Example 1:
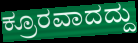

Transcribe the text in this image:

ಕ್ರೂರವಾದದ್ದು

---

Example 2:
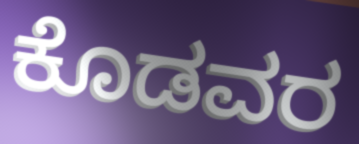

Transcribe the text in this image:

ಕೊಡವರ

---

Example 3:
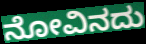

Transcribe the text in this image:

ನೋವಿನದು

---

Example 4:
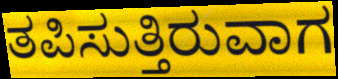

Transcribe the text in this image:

ತಪಿಸುತ್ತಿರುವಾಗ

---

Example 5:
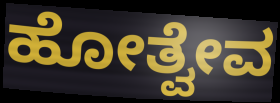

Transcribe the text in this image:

ಹೋತ್ವೇವ